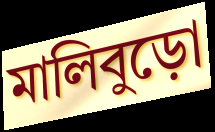
মালিবুড়ো